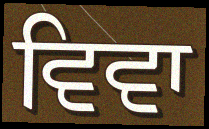
ਵਿਵਾ